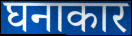
घनाकार